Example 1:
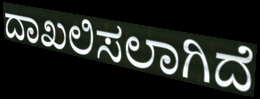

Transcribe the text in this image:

ದಾಖಲಿಸಲಾಗಿದೆ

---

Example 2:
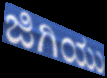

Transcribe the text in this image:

ಜಿಗಿಯು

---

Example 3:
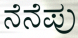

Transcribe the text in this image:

ನೆನೆಪು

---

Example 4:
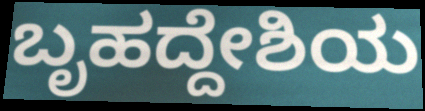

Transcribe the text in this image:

ಬೃಹದ್ದೇಶಿಯ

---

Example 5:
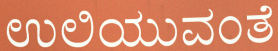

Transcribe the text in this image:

ಉಲಿಯುವಂತೆ